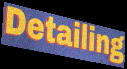
Detailing